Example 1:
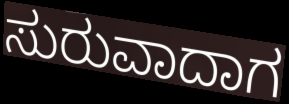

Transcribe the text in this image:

ಸುರುವಾದಾಗ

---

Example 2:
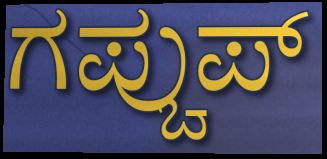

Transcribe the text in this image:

ಗಪ್ಚುಪ್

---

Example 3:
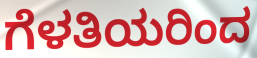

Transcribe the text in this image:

ಗೆಳತಿಯರಿಂದ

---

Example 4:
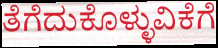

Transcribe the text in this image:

ತೆಗೆದುಕೊಳ್ಳುವಿಕೆಗೆ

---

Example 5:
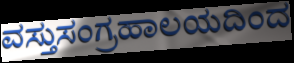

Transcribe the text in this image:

ವಸ್ತುಸಂಗ್ರಹಾಲಯದಿಂದ